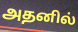
அதனில்